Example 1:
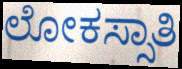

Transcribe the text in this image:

ಲೋಕಸ್ಸಾತಿ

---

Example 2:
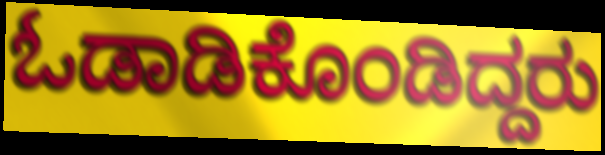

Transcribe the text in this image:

ಓಡಾಡಿಕೊಂಡಿದ್ದರು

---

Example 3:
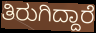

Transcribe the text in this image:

ತಿರುಗಿದ್ದಾರೆ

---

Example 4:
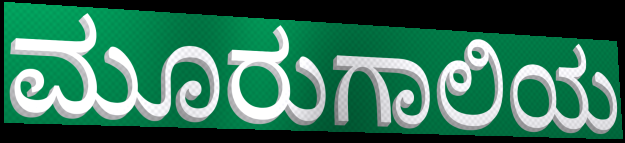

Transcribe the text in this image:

ಮೂರುಗಾಲಿಯ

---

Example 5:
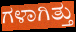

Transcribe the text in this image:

ಗಳಾಗಿತ್ತು